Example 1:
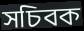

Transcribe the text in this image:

সচিবক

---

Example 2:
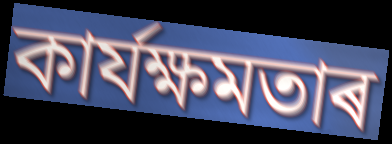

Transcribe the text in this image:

কাৰ্যক্ষমতাৰ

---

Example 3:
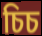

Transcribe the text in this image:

চিচ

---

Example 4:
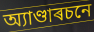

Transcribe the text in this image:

অ্যাণ্ডাৰচনে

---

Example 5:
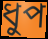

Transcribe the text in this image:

ধুপ